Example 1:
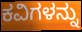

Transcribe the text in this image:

ಕವಿಗಳನ್ನು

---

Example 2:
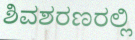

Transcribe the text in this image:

ಶಿವಶರಣರಲ್ಲಿ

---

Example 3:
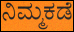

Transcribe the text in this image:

ನಿಮ್ಮಕಡೆ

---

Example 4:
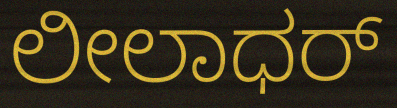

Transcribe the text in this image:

ಲೀಲಾಧರ್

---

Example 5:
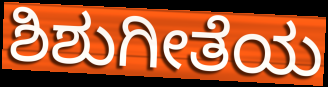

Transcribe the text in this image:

ಶಿಶುಗೀತೆಯ